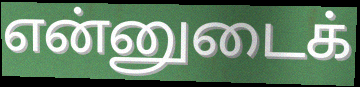
என்னுடைக்